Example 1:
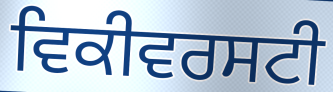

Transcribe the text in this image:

ਵਿਕੀਵਰਸਟੀ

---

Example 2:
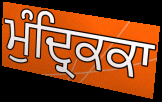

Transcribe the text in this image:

ਮੁੰਦ੍ਰਿਕਕਾ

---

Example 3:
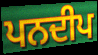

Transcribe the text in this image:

ਪਨਦੀਪ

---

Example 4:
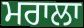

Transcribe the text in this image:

ਮਰਾਲਾ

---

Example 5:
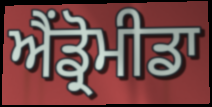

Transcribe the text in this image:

ਐਂਡ੍ਰੋਮੀਡਾ